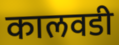
कालवडी